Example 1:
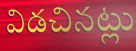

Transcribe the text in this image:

విడచినట్లు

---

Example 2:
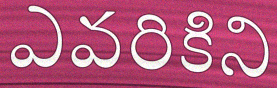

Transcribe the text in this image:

ఎవరికిని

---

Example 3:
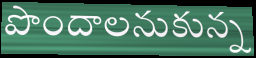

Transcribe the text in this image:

పొందాలనుకున్న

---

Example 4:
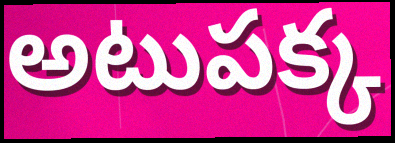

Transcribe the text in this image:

అటుపక్క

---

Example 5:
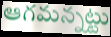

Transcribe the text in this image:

ఆగమన్నట్టు